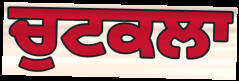
ਚੁਟਕਲਾ